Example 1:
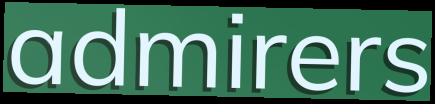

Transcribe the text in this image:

admirers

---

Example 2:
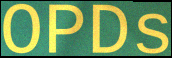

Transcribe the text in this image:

OPDs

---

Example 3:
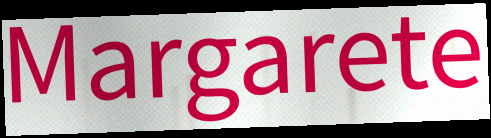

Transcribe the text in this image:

Margarete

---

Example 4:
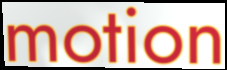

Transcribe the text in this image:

motion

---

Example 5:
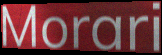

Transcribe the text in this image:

Morari